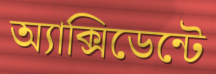
অ্যাক্সিডেন্টে